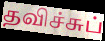
தவிச்சுப்